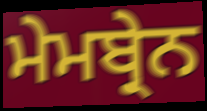
ਮੇਮਬ੍ਰੇਨ